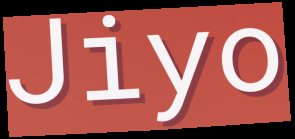
Jiyo